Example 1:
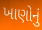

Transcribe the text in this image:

ખાણોનું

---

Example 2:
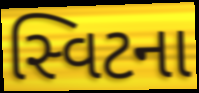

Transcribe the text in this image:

સ્વિટના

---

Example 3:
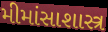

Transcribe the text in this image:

મીમાંસાશાસ્ત્ર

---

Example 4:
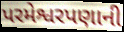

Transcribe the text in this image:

પરમેશ્વરપણાની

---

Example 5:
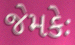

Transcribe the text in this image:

જેમકેઃ